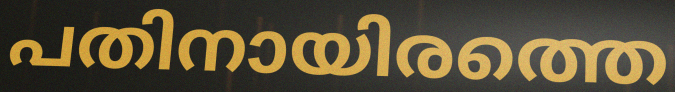
പതിനായിരത്തെ